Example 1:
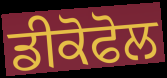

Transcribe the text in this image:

ਡੀਕੋਫੋਲ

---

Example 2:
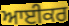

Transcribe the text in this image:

ਆਈਕਰ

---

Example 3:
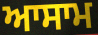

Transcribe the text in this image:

ਆਸਾਮ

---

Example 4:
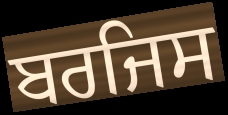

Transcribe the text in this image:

ਬਰਜਿਸ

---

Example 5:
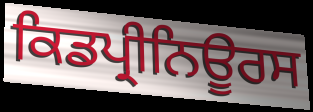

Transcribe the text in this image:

ਕਿਡਪ੍ਰੀਨਿਊਰਸ